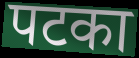
पटका